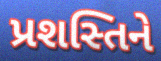
પ્રશસ્તિને